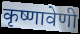
कृष्णावेणी